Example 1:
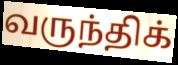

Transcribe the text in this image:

வருந்திக்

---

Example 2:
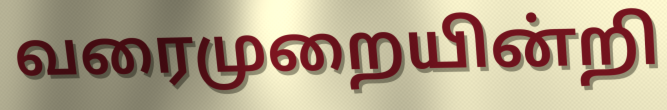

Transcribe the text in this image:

வரைமுறையின்றி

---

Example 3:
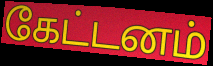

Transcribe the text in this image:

கேட்டனம்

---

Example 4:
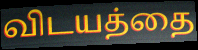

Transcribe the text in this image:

விடயத்தை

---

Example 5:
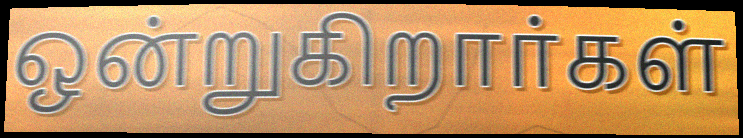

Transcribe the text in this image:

ஒன்றுகிறார்கள்